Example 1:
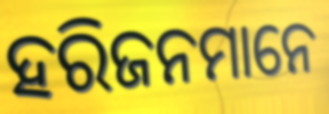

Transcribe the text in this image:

ହରିଜନମାନେ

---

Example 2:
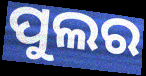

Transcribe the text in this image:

ପୁଲର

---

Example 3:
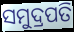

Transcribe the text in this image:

ସମୁଦ୍ରପତି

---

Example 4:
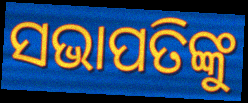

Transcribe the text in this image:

ସଭାପତିଙ୍କୁ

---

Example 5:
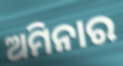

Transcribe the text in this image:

ଅମିନାର